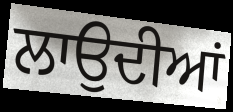
ਲਾਉਦੀਆਂ